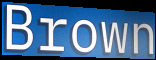
Brown